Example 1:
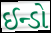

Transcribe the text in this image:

ઈન્ડો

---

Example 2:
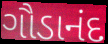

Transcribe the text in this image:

ગૌડાનંદ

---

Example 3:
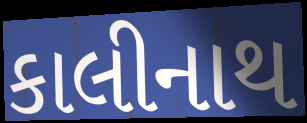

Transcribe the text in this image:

કાલીનાથ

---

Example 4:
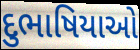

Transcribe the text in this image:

દુભાષિયાઓ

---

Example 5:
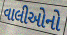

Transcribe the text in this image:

વાલીઓનો